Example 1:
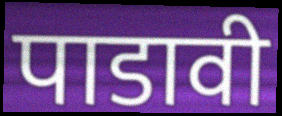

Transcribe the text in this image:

पाडावी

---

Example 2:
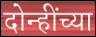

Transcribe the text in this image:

दोन्हींच्या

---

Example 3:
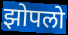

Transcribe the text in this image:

झोपलो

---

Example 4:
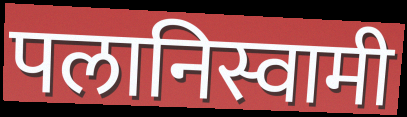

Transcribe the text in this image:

पलानिस्वामी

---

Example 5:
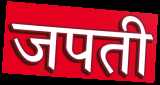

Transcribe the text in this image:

जपती